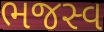
ભજસ્વ